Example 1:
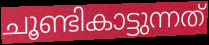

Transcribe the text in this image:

ചൂണ്ടികാട്ടുന്നത്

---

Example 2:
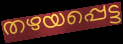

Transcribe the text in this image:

തഴയപ്പെട്ട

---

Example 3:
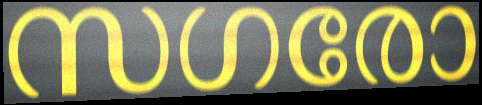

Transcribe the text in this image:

സഗരോ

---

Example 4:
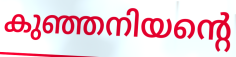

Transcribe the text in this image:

കുഞ്ഞനിയന്റെ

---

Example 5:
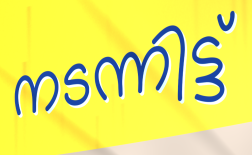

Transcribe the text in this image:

നടന്നിട്ട്